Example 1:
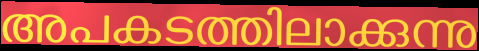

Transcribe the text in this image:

അപകടത്തിലാക്കുന്നു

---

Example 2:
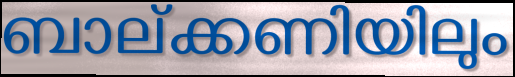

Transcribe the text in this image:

ബാല്ക്കണിയിലും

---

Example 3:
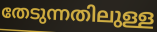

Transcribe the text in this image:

തേടുന്നതിലുള്ള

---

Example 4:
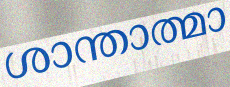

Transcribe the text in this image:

ശാന്താത്മാ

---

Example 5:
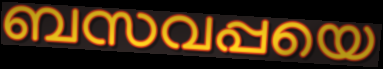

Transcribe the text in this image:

ബസവപ്പയെ